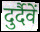
दुर्दैवें